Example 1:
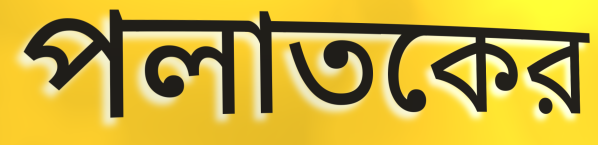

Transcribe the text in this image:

পলাতকের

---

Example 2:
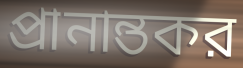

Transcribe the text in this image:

প্রানান্তকর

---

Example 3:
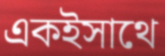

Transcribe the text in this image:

একইসাথে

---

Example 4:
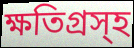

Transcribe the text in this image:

ক্ষতিগ্রস্হ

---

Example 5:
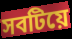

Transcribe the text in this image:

সবটিয়ে